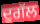
ਦੁਗੱਲ